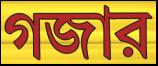
গজার